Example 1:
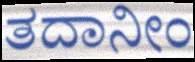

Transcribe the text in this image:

ತದಾನೀಂ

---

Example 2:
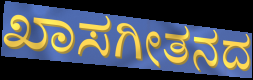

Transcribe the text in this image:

ಖಾಸಗೀತನದ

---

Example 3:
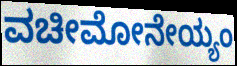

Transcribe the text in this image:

ವಚೀಮೋನೇಯ್ಯಂ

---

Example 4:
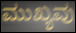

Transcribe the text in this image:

ಮುಖ್ಯವು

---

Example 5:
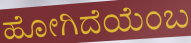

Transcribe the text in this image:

ಹೋಗಿದೆಯೆಂಬ